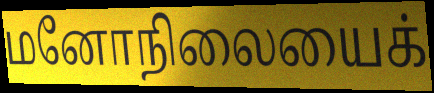
மனோநிலையைக்